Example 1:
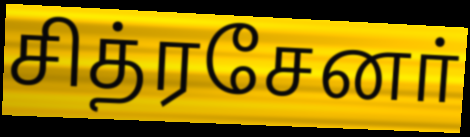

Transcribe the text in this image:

சித்ரசேனர்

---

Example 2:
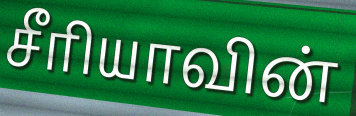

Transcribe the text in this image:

சீரியாவின்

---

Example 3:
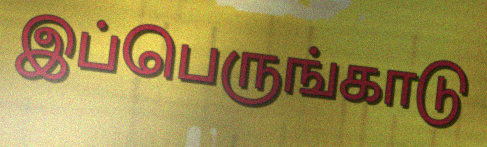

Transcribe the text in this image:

இப்பெருங்காடு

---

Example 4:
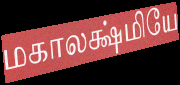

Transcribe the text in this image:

மகாலக்ஷ்மியே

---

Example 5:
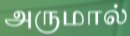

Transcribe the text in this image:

அருமால்